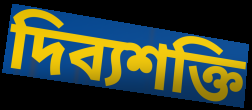
দিব্যশক্তি